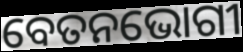
ବେତନଭୋଗୀ